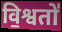
वि॒श्वतो॑